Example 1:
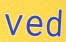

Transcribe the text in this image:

ved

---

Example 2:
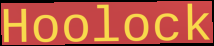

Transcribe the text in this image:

Hoolock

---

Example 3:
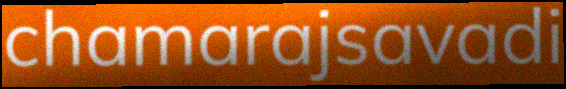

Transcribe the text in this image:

chamarajsavadi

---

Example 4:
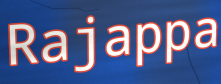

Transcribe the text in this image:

Rajappa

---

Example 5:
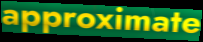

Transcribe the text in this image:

approximate